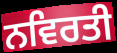
ਨਵਿਰਤੀ